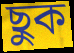
ছুক